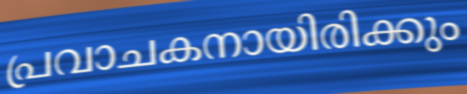
പ്രവാചകനായിരിക്കും